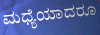
ಮಧ್ಯೆಯಾದರೂ